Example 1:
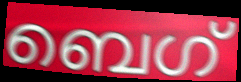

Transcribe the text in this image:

ബെഗ്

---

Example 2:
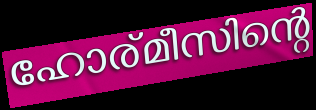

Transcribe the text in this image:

ഹോര്മീസിന്റെ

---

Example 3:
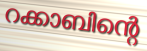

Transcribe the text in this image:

റക്കാബിന്റെ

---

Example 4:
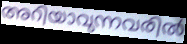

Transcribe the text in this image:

അറിയാവുന്നവരിൽ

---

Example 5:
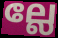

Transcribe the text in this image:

ല്ലേ